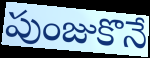
పుంజుకొనే